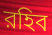
রহিব